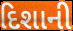
દિશાની